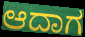
ಆದಾಗ